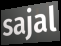
sajal